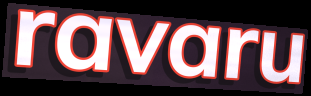
ravaru